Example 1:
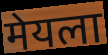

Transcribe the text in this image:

मेयला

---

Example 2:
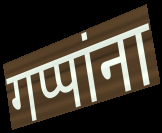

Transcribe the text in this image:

गप्पांना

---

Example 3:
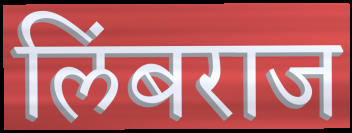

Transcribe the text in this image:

लिंबराज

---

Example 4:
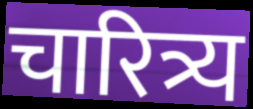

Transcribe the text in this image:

चारित्र्य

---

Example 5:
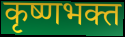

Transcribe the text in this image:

कृष्णभक्त